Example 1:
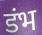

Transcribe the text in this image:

डंभ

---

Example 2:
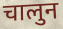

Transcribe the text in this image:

चालुन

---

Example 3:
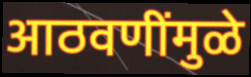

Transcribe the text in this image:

आठवणींमुळे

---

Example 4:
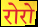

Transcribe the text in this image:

रोरो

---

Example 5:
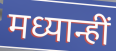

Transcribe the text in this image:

मध्यान्हीं